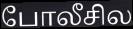
போலீசில